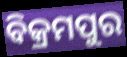
ବିକ୍ରମପୁର